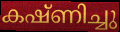
കഷ്ണിച്ചു